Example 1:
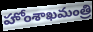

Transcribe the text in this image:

హోంశాఖమంత్రి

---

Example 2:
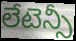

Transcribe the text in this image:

లేటెన్సీ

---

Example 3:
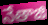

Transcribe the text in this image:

నేతాజి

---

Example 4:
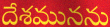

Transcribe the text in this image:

దేశమునను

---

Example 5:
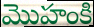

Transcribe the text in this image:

మొహంకి